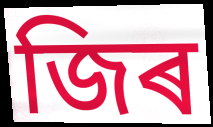
জিৰ